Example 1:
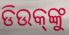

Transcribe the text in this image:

ଡିଉକ୍‌ଙ୍କୁ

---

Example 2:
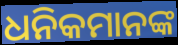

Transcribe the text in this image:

ଧନିକମାନଙ୍କ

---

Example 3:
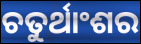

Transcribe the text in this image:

ଚତୁର୍ଥାଂଶର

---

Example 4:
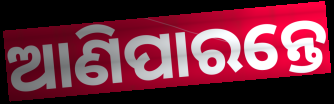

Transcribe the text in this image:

ଆଣିପାରନ୍ତେ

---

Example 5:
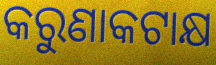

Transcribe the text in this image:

କରୁଣାକଟାକ୍ଷ